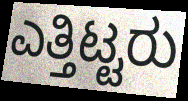
ಎತ್ತಿಟ್ಟರು